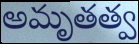
అమృతత్వ